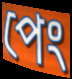
পেং